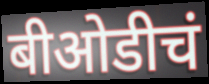
बीओडीचं